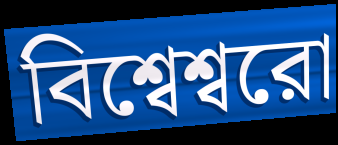
বিশ্বেশ্বরো